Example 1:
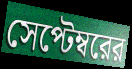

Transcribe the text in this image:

সেপ্টেম্বরের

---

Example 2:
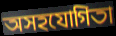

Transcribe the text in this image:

অসহযোগিতা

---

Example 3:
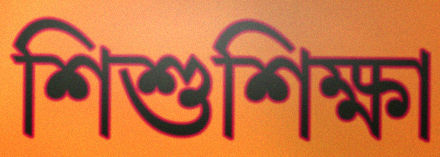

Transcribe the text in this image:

শিশুশিক্ষা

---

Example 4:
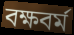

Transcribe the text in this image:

বক্ষবর্ম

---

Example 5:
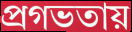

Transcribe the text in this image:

প্রগভতায়